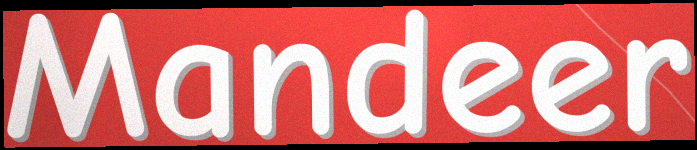
Mandeer